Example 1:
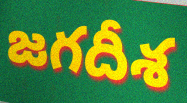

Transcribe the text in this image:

జగదీశ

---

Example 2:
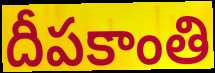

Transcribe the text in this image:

దీపకాంతి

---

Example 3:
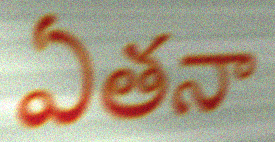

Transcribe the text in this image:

ఏతనా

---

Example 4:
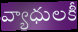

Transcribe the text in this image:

వ్యాధులకీ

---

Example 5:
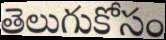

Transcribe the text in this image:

తెలుగుకోసం